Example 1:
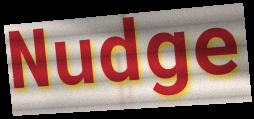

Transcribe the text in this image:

Nudge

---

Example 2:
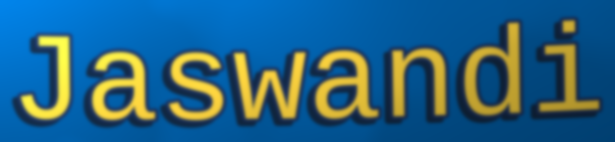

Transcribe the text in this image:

Jaswandi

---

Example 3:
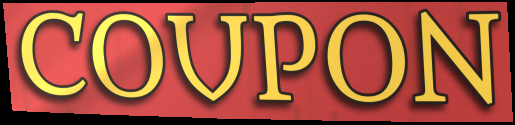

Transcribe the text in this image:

COUPON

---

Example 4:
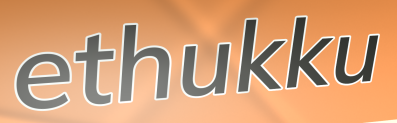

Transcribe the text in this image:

ethukku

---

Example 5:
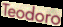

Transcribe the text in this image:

Teodoro